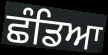
ਛੰਡਿਆ